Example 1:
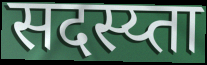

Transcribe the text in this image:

सदस्य्ता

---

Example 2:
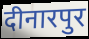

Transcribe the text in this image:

दीनारपुर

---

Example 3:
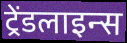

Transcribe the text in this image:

ट्रेंडलाइन्स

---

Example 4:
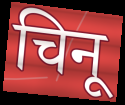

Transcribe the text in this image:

चिनू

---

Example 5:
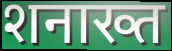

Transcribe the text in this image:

शनाख्त